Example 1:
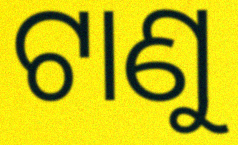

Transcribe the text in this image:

ଟାଣୁ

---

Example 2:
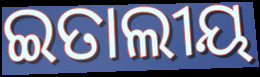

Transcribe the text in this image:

ଇତାଲୀୟ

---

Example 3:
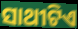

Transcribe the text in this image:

ସାଥୀଟିଏ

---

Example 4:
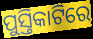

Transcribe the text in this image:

ପୁସ୍ତିକାଟିରେ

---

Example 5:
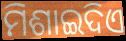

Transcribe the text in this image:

ମିଶାଇଦିଏ